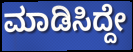
ಮಾಡಿಸಿದ್ದೇ